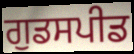
ਗੁਡਸਪੀਡ